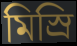
মিস্রি